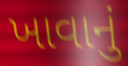
ખાવાનું